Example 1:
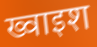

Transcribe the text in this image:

ख्वाइश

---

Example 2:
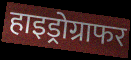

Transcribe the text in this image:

हाइड्रोग्राफर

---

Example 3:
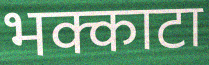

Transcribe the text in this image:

भक्काटा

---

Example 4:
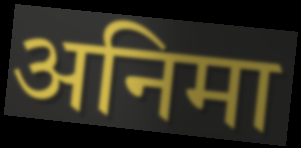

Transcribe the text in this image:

अनिमा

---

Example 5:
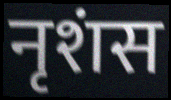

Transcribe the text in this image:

नृशंस